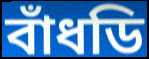
বাঁধডি